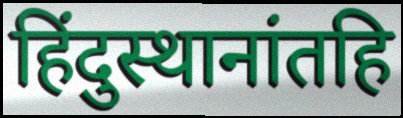
हिंदुस्थानांतहि